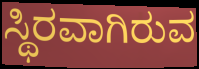
ಸ್ಥಿರವಾಗಿರುವ